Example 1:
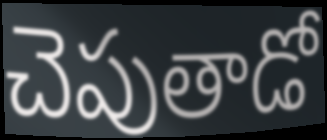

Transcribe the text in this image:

చెపుతాడో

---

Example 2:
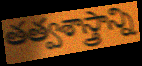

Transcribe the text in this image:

తత్వశాస్త్రాన్ని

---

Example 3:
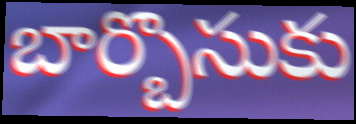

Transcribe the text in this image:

బార్బొసుకు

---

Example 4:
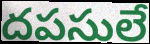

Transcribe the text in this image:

దపసులే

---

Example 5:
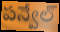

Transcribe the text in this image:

పన్వేల్